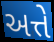
અત્તે